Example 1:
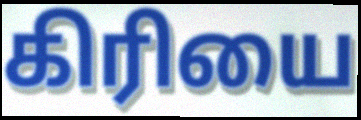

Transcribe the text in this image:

கிரியை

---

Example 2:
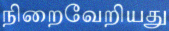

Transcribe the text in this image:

நிறைவேறியது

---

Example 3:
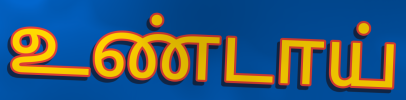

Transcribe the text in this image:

உண்டாய்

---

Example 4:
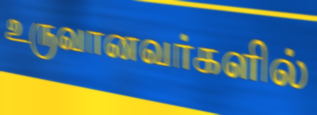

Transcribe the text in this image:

உருவானவர்களில்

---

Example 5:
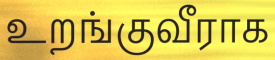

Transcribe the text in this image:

உறங்குவீராக